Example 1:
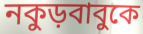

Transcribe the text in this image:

নকুড়বাবুকে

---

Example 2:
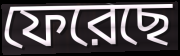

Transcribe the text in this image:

ফেরেছে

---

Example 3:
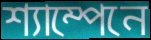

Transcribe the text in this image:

শ্যাম্পেনে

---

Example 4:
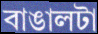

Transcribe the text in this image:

বাঙালটা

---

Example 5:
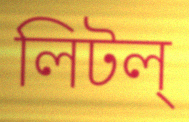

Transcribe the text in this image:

লিটল্